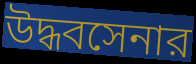
উদ্ধবসেনার